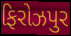
ફિરોઝપુર